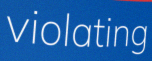
violating